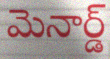
మెనార్డ్